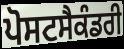
ਪੋਸਟਸੈਕੰਡਰੀ